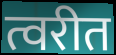
त्वरीत